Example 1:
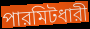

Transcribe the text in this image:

পারমিটধারী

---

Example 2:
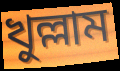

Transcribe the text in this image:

খুল্লাম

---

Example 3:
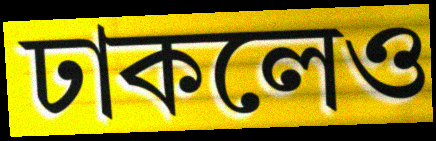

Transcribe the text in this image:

ঢাকলেও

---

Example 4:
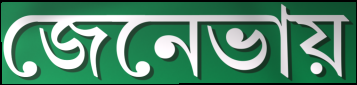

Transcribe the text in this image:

জেনেভায়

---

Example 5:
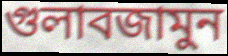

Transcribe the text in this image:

গুলাবজামুন